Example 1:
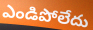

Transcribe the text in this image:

ఎండిపోలేదు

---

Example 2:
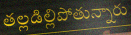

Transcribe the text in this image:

తల్లడిల్లిపోతున్నారు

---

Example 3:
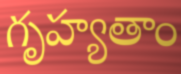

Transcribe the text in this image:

గృహ్యతాం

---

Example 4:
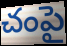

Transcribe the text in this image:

చంపై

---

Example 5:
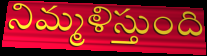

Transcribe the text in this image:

నిమ్మళిస్తుంది